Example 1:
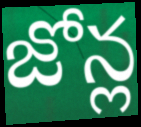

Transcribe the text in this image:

జోన్ల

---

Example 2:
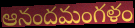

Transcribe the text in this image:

ఆనందమంగళం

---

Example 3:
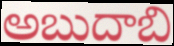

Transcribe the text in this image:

అబుదాబి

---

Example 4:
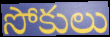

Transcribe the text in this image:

సోకులు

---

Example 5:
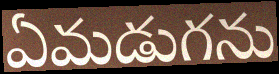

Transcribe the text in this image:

ఏమడుగను